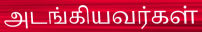
அடங்கியவர்கள்